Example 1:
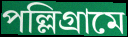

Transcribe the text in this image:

পল্লিগ্রামে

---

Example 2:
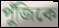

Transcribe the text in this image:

পুঁজিকে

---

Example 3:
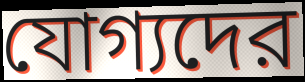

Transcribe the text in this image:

যোগ্যদের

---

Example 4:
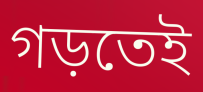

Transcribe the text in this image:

গড়তেই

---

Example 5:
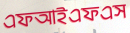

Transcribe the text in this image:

এফআইএফএস